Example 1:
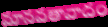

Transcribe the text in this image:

మానవతావాదం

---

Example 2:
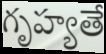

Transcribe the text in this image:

గృహ్యతే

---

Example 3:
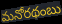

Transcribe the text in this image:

మనోరథంబు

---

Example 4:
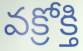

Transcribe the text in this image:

వక్రోక్తి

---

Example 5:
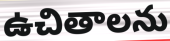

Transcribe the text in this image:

ఉచితాలను